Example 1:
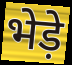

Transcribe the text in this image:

भेड़े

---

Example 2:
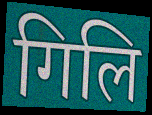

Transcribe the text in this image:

गिलि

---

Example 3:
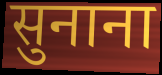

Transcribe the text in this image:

सुनाना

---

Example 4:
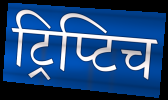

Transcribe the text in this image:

ट्रिप्टिच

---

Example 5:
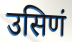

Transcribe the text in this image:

उसिणं